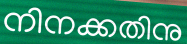
നിനക്കതിനു